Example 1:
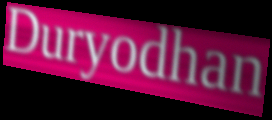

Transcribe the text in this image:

Duryodhan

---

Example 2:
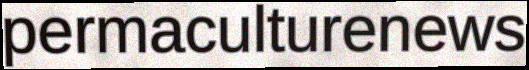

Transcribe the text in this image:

permaculturenews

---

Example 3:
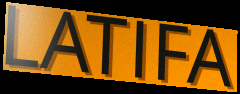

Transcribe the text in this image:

LATIFA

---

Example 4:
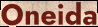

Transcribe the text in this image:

Oneida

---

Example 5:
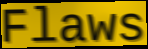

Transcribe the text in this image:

Flaws